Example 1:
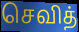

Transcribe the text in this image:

செவித்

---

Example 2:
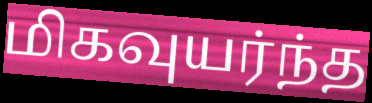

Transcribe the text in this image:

மிகவுயர்ந்த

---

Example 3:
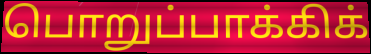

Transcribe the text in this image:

பொறுப்பாக்கிக்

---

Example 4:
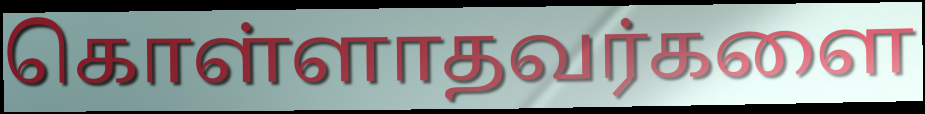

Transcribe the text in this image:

கொள்ளாதவர்களை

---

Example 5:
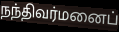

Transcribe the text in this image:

நந்திவர்மனைப்